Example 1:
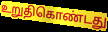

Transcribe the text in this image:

உறுதிகொண்டது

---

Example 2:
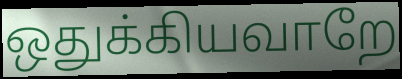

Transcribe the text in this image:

ஒதுக்கியவாறே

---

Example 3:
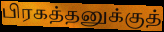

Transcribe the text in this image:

பிரகத்தனுக்குத்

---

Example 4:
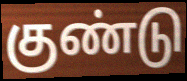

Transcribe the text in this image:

குண்டு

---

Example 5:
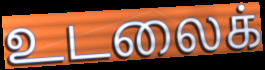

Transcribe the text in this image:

உடலைக்